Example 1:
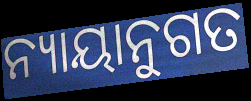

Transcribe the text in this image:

ନ୍ୟାୟାନୁଗତ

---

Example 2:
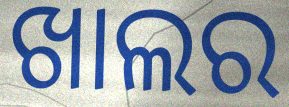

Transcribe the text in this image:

ଖାଲର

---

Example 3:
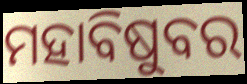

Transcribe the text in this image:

ମହାବିଷୁବର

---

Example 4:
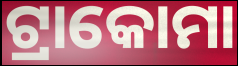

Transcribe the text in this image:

ଟ୍ରାକୋମା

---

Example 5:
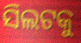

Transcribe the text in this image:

ସିଲଟକୁ